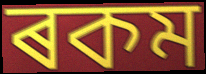
ৰকম